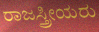
ರಾಜಸ್ತ್ರೀಯರು